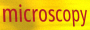
microscopy